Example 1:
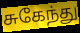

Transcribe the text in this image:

சுகேந்து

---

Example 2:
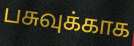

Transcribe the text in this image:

பசுவுக்காக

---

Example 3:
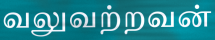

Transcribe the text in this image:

வலுவற்றவன்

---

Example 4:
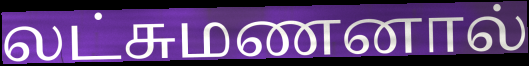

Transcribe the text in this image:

லட்சுமணனால்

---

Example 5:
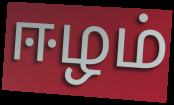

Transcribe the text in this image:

ஈழம்